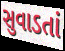
સુવાડતાં